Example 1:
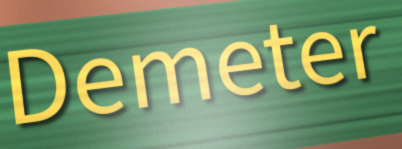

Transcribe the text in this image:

Demeter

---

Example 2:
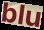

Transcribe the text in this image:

blu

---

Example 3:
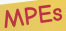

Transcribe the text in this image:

MPEs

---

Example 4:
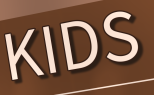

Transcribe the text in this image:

KIDS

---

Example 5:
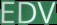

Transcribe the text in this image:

EDV